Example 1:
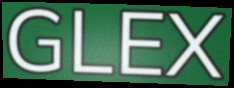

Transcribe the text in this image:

GLEX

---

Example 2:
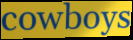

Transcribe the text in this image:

cowboys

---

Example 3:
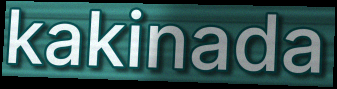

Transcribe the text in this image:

kakinada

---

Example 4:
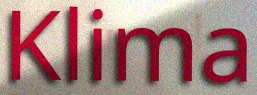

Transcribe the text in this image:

Klima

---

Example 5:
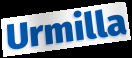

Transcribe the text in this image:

Urmilla